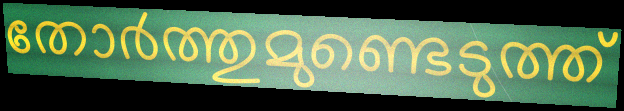
തോർത്തുമുണ്ടെടുത്ത്